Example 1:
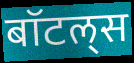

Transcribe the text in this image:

बॉटल्स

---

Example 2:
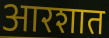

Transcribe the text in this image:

आरशात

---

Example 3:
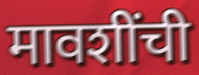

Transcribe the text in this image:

मावशींची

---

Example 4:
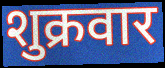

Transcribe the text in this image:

शुक्रवार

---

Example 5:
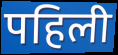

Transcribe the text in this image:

पहिली